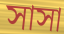
সাসা